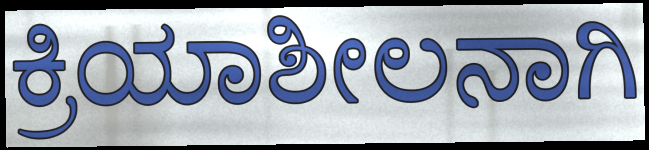
ಕ್ರಿಯಾಶೀಲನಾಗಿ